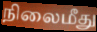
நிலைமீது